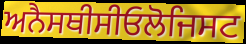
ਅਨੈਸਥੀਸੀਓਲੋਜਿਸਟ